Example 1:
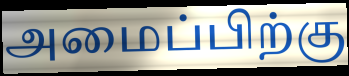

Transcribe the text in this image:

அமைப்பிற்கு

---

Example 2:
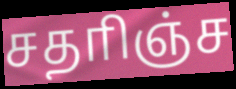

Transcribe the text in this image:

சதரிஞ்ச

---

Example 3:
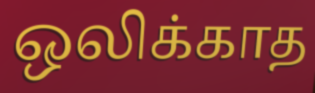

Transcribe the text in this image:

ஒலிக்காத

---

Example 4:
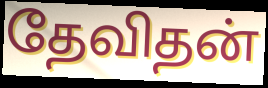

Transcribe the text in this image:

தேவிதன்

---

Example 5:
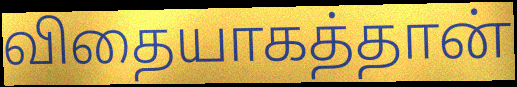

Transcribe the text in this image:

விதையாகத்தான்